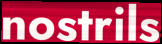
nostrils